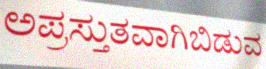
ಅಪ್ರಸ್ತುತವಾಗಿಬಿಡುವ